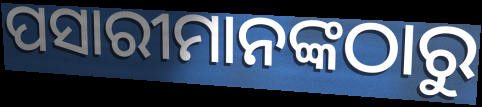
ପସାରୀମାନଙ୍କଠାରୁ